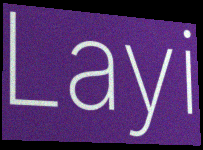
Layi